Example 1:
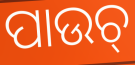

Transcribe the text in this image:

ପାଉଚ୍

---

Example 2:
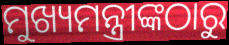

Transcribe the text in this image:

ମୁଖ୍ୟମନ୍ତ୍ରୀଙ୍କଠାରୁ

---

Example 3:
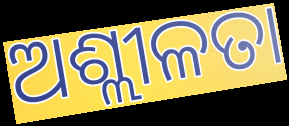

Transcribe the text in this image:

ଅଶ୍ଲୀଳତା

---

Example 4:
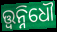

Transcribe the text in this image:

ତ୍ତ୍ଵନ୍ନିଧୌ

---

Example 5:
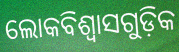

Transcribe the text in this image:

ଲୋକବିଶ୍ୱାସଗୁଡ଼ିକ